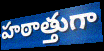
హఠాత్తుగా